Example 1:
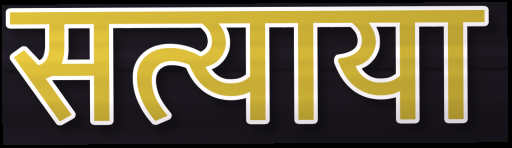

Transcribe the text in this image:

सत्याया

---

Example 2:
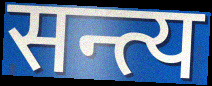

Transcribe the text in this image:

सन्त्य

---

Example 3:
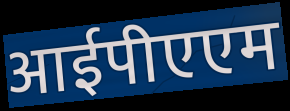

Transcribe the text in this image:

आईपीएएम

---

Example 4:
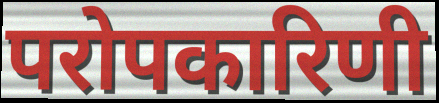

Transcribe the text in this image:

परोपकारिणी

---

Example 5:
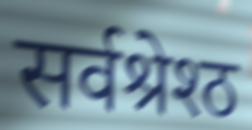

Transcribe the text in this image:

सर्वश्रेश्ठ